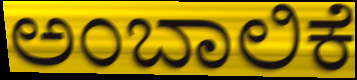
ಅಂಬಾಲಿಕೆ